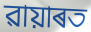
ৱায়াৰত